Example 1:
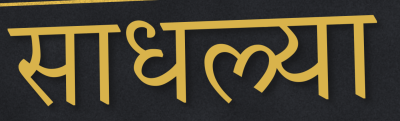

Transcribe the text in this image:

साधल्या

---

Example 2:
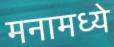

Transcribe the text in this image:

मनामध्ये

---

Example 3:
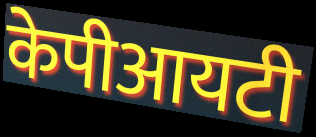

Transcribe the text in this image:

केपीआयटी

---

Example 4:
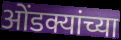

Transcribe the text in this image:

ओंडक्यांच्या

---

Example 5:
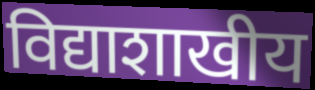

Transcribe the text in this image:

विद्याशाखीय